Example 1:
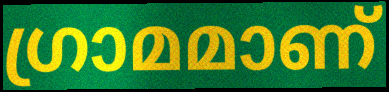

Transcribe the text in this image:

ഗ്രാമമാണ്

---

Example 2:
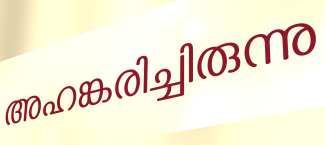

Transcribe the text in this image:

അഹങ്കരിച്ചിരുന്നു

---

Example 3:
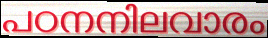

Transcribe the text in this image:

പഠനനിലവാരം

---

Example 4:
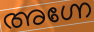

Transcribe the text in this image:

അഗ്നേ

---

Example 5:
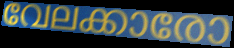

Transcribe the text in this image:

വേലക്കാരോ